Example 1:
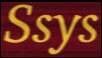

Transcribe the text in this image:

Ssys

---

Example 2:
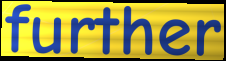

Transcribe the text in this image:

further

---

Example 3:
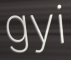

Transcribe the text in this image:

gyi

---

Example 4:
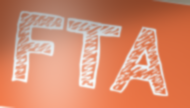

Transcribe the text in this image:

FTA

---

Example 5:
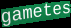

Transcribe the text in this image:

gametes